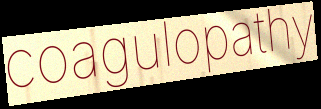
coagulopathy